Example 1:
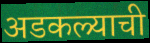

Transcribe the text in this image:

अडकल्याची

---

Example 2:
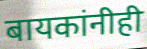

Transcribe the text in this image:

बायकांनीही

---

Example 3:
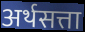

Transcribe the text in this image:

अर्थसत्ता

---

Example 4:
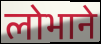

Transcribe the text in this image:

लोभाने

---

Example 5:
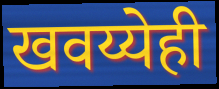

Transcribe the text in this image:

खवय्येही